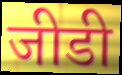
जीडी